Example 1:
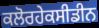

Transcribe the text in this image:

ਕਲੋਰਹੇਕਸੀਡੀਨ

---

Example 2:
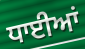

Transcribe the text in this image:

ਧਾਈਆਂ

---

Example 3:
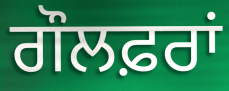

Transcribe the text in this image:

ਗੌਲਫ਼ਰਾਂ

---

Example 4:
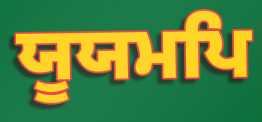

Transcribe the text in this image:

ਯੂਯਮਪਿ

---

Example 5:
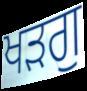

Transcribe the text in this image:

ਖੜਗੁ